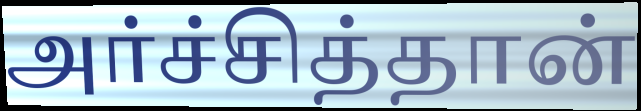
அர்ச்சித்தான்